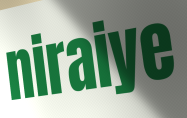
niraiye